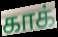
காக்